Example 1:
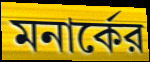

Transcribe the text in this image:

মনার্কের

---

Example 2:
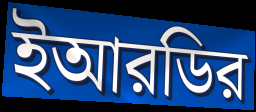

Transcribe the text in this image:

ইআরডির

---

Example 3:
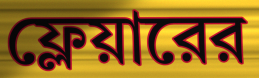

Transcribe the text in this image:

ফ্লেয়ারের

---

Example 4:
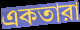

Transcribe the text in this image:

একতারা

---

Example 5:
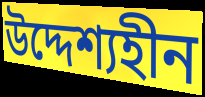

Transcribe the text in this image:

উদ্দেশ্যহীন